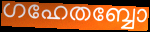
ഗഹേതബ്ബോ